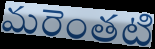
మరెంతటి